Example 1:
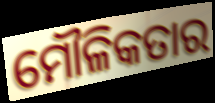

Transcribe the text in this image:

ମୌଳିକତାର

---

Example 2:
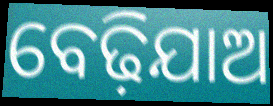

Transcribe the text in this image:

ବେଢ଼ିଯାଅ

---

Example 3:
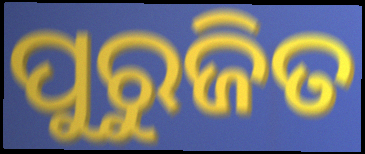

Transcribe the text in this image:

ପୁରୁଜିତ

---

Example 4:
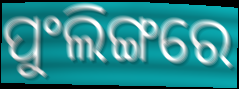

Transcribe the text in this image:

ପୁଂଲିଙ୍ଗରେ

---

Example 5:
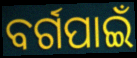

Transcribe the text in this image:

ବର୍ଗପାଇଁ